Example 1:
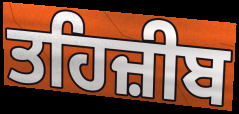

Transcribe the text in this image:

ਤਹਿਜ਼ੀਬ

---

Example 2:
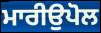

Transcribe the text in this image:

ਮਾਰੀਉਪੋਲ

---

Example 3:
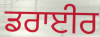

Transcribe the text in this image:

ਡਰਾਈਰ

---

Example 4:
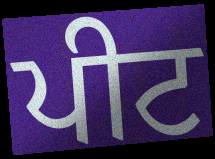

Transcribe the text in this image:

ਪੀਟ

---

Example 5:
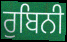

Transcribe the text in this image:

ਰੁਬਿਨੀ